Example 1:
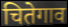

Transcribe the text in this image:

चितेगाव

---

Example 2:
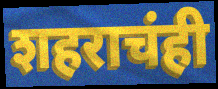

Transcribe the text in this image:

शहराचंही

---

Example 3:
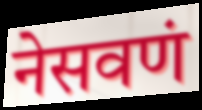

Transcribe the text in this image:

नेसवणं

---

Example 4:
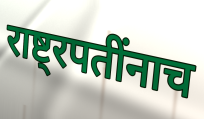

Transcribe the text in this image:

राष्ट्रपतींनाच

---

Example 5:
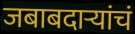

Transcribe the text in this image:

जबाबदार्‍यांचं